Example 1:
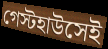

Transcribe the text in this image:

গেস্টহাউসেই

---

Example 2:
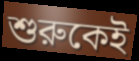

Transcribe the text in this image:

শুরুকেই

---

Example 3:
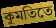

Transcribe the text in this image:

কুমতিতে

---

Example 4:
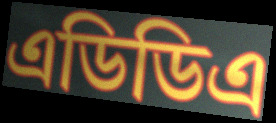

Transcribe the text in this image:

এডিডিএ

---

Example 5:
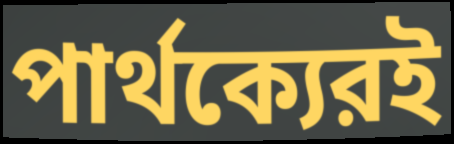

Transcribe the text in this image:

পার্থক্যেরই